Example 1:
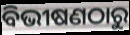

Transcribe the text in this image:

ବିଭୀଷଣଠାରୁ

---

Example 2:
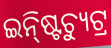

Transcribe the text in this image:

ଇନ୍ଷ୍ଟିଚ୍ୟୁଟ୍ର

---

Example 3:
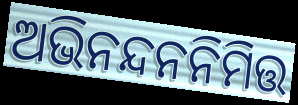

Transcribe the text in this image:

ଅଭିନନ୍ଦନନିମିତ୍ତ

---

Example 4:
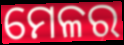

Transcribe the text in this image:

ମେଳର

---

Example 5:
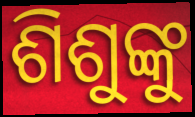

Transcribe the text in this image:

ଶିଶୁଙ୍କୁ